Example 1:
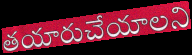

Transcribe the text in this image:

తయారుచేయాలని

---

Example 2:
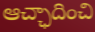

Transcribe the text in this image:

ఆచ్ఛాదించి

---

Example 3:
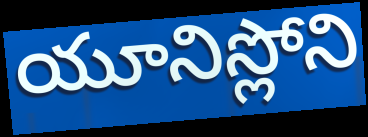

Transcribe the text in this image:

యూనిస్లోని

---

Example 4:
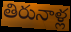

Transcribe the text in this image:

తిరునాళ్ల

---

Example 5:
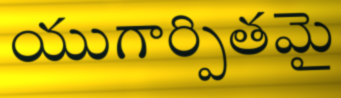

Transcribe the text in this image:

యుగార్పితమై